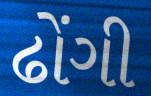
ઢોંગી